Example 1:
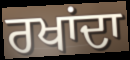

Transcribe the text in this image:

ਰਖਾਂਦਾ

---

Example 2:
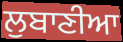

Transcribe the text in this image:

ਲੁਬਾਣੀਆ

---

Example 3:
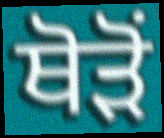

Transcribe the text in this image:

ਥੋੜੋਂ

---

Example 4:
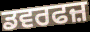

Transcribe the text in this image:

ਡਵਰਫਜ਼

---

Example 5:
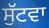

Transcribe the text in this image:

ਸੁੱਟਵਾ